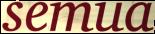
semua